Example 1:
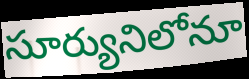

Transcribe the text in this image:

సూర్యునిలోనూ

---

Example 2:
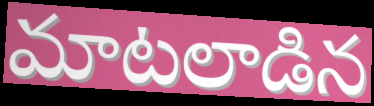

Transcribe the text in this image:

మాటలాడిన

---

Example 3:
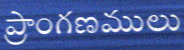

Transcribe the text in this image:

ప్రాంగణములు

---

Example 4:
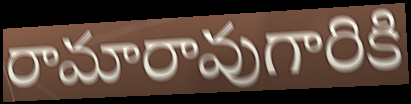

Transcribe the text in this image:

రామారావుగారికి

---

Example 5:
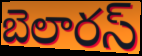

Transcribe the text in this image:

బెలారస్